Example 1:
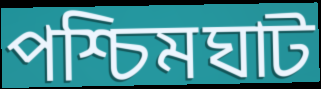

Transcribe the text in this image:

পশ্চিমঘাট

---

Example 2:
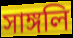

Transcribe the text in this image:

সাঙ্গলি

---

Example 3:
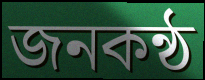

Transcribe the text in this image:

জনকন্ঠ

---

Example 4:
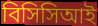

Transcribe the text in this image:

বিসিসিআই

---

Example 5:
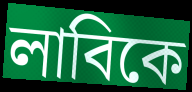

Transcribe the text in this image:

লাবিকে